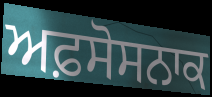
ਅਫ਼ਸੋਸਨਾਕ